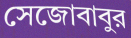
সেজোবাবুর